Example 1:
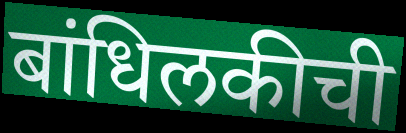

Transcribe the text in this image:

बांधिलकीची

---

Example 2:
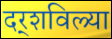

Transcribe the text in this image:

दर्शविल्या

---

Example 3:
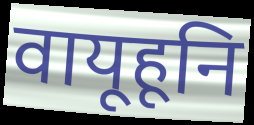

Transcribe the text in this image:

वायूहूनि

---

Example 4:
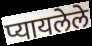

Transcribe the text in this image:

प्यायलेले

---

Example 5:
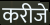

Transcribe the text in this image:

करीजे